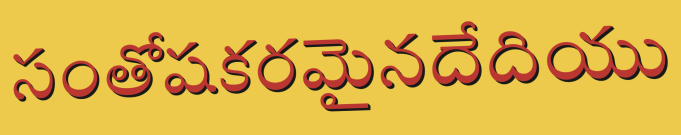
సంతోషకరమైనదేదియు